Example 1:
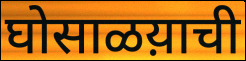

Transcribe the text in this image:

घोसाळय़ाची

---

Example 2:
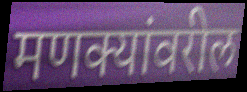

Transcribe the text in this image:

मणक्यांवरील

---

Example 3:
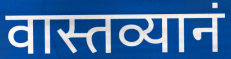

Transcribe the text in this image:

वास्तव्यानं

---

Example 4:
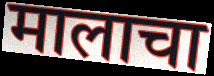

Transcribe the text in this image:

मालाचा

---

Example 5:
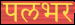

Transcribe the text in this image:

पलभर